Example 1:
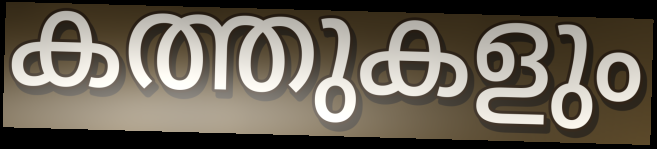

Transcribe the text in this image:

കത്തുകളും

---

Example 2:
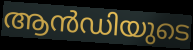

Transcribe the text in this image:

ആൻഡിയുടെ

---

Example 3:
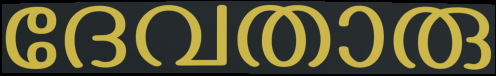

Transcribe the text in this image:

ദേവതാരു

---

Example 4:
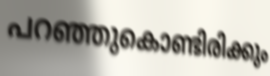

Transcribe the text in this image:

പറഞ്ഞുകൊണ്ടിരിക്കും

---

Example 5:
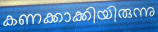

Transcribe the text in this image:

കണക്കാക്കിയിരുന്നു